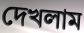
দেখলাম